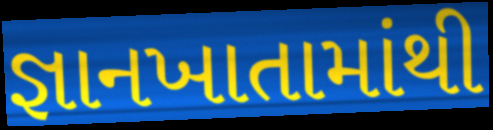
જ્ઞાનખાતામાંથી